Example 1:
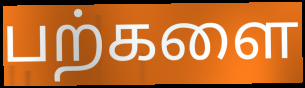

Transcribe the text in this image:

பற்களை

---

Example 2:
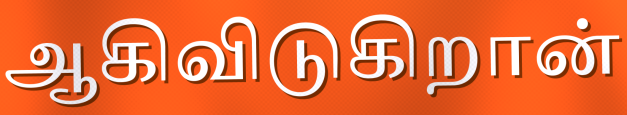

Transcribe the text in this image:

ஆகிவிடுகிறான்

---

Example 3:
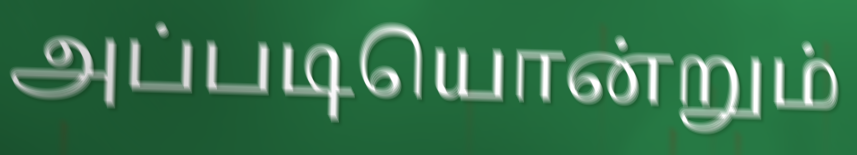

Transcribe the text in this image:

அப்படியொன்றும்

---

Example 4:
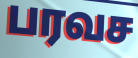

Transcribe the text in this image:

பரவச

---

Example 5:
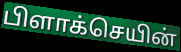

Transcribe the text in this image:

பிளாக்செயின்